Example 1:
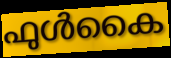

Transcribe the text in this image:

ഫുൾകൈ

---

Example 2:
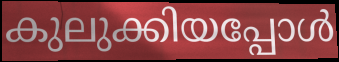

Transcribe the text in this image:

കുലുക്കിയപ്പോൾ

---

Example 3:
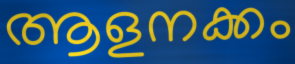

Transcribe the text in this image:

ആളനക്കം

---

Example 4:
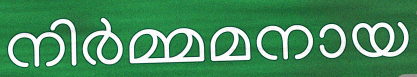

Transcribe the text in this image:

നിർമ്മമനായ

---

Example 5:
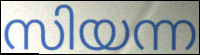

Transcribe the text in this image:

സിയന്ന